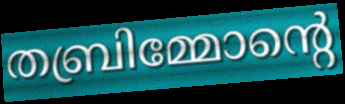
തബ്രിമ്മോന്റെ